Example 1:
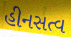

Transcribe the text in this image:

હીનસત્વ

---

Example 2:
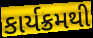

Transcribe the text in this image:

કાર્યક્રમથી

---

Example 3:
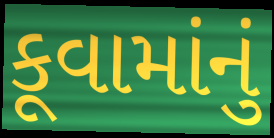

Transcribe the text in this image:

કૂવામાંનું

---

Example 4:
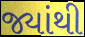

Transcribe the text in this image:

જ્યાંથી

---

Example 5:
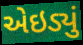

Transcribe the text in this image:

એઇડ્યું